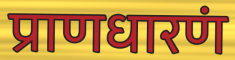
प्राणधारणं